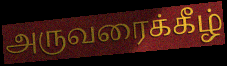
அருவரைக்கீழ்